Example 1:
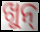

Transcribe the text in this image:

ଖୁନ୍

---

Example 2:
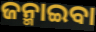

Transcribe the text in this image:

ଜନ୍ମାଇବା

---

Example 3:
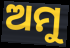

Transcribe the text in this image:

ଅମୁ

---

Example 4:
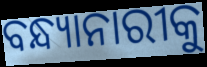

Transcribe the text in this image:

ବନ୍ଧ୍ୟାନାରୀକୁ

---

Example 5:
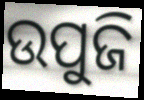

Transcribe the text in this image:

ଉପୁଜି